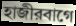
হাজীরবাগে